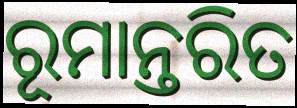
ରୂମାନ୍ତରିତ